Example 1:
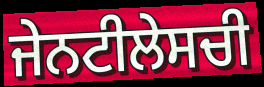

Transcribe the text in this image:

ਜੇਨਟੀਲੇਸਚੀ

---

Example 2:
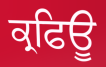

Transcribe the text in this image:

ਕ੍ਰਫਿਊ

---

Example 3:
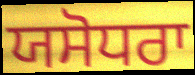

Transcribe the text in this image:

ਯਸੋਧਰਾ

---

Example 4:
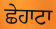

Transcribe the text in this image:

ਛੇਹਾਟਾ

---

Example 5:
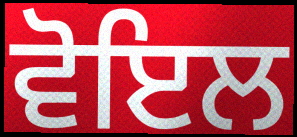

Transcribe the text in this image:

ਵੋਇਲ